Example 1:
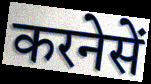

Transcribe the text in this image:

करनेसें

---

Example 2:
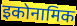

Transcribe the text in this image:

इकोनामिक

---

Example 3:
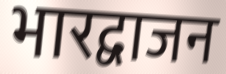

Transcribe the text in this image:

भारद्वाजन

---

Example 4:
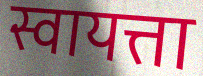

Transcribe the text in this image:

स्वायत्ता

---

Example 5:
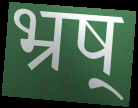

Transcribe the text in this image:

भ्रष्